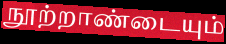
நூற்றாண்டையும்